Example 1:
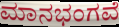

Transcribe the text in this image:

ಮಾನಭಂಗವೆ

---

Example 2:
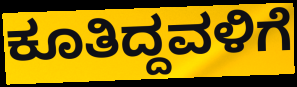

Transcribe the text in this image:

ಕೂತಿದ್ದವಳಿಗೆ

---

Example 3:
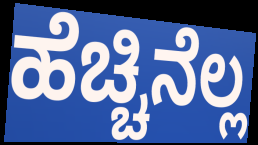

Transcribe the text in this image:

ಹೆಚ್ಚಿನೆಲ್ಲ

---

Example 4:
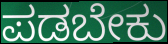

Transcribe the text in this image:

ಪಡಬೇಕು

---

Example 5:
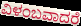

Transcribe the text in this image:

ವಿಳಂಬವಾದರೆ